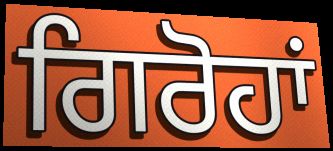
ਗਿਰੋਹਾਂ